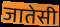
जातेसी